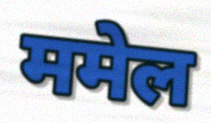
ममेल